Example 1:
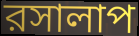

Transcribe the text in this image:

রসালাপ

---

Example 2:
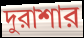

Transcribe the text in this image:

দুরাশার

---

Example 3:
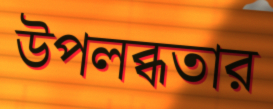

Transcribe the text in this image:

উপলব্ধতার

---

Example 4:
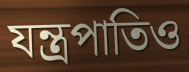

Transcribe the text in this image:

যন্ত্রপাতিও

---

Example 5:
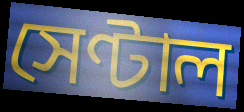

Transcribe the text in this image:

সেণ্টাল